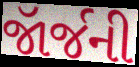
જૉર્જની